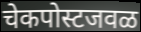
चेकपोस्टजवळ